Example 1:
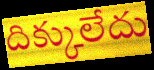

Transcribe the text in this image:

దిక్కులేదు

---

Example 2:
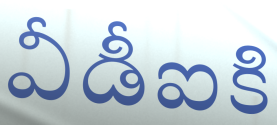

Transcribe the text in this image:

వీడీఐకి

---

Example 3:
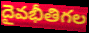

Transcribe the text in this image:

దైవభీతిగల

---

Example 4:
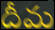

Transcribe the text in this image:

దీమ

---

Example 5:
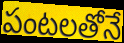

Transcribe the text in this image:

పంటలతోనే